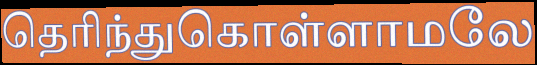
தெரிந்துகொள்ளாமலே